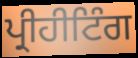
ਪ੍ਰੀਹੀਟਿੰਗ